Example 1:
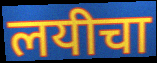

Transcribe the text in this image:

लयीचा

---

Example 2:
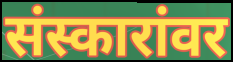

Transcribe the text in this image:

संस्कारांवर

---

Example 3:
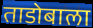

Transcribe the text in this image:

ताडोबाला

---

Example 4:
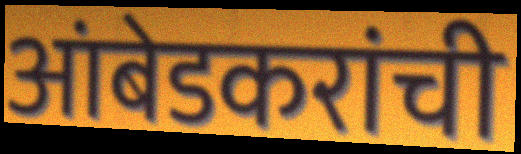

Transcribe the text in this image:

आंबेडकरांची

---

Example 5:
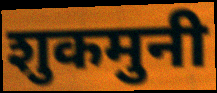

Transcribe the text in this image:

शुकमुनी